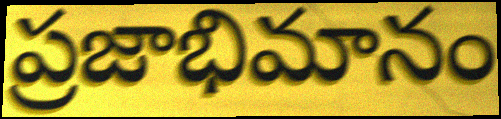
ప్రజాభిమానం